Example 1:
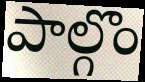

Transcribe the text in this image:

పాల్గొం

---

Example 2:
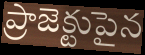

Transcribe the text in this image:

ప్రాజెక్టుపైన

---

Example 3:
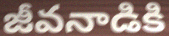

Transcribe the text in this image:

జీవనాడికి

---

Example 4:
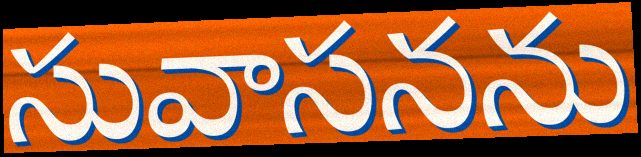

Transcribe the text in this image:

సువాసనను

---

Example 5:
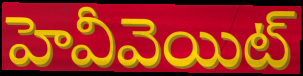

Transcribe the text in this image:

హెవీవెయిట్